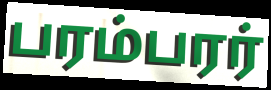
பரம்பரர்